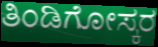
ತಿಂಡಿಗೋಸ್ಕರ